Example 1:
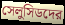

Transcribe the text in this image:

সেলুসিডদের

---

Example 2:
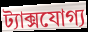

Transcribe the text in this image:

ট্যাক্সযোগ্য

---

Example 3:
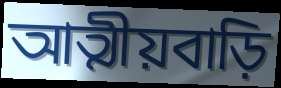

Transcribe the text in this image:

আত্মীয়বাড়ি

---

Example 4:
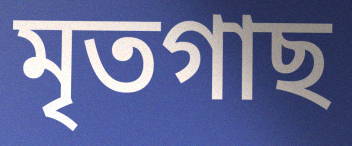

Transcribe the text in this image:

মৃতগাছ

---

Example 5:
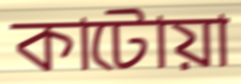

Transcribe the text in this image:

কাটোয়া